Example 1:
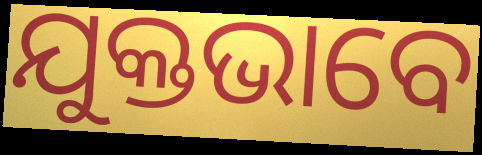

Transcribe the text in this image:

ଯୁକ୍ତଭାବେ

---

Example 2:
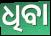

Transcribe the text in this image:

ଧିବା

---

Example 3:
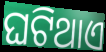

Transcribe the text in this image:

ଘଟିଥାଏ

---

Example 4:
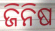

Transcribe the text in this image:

ଜିନିଷ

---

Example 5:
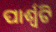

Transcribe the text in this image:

ପାର୍ଶ୍ଵଟି